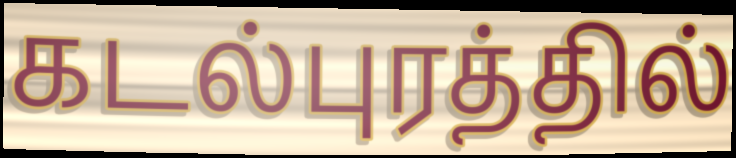
கடல்புரத்தில்